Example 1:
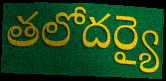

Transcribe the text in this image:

తలోదర్యై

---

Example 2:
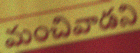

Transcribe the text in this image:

మంచివాడని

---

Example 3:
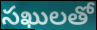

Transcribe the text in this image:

సఖులతో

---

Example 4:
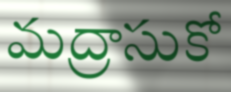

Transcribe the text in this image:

మద్రాసుకో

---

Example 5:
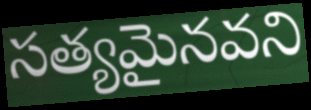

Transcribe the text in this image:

సత్యమైనవని